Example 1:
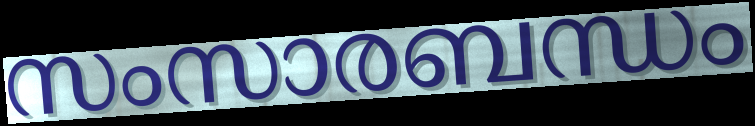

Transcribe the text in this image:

സംസാരബന്ധം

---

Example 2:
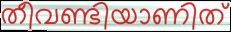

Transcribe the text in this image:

തീവണ്ടിയാണിത്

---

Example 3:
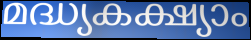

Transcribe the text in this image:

മദ്ധ്യകക്ഷ്യാം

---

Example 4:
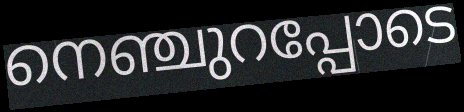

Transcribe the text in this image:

നെഞ്ചുറപ്പോടെ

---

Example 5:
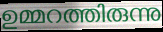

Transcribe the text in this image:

ഉമ്മറത്തിരുന്നു